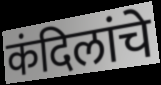
कंदिलांचे